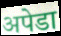
अपेडा